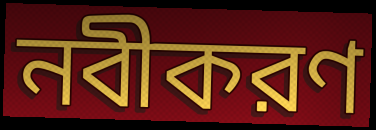
নবীকরণ